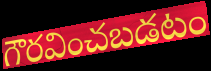
గౌరవించబడటం